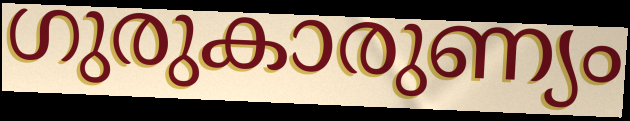
ഗുരുകാരുണ്യം